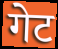
गेट